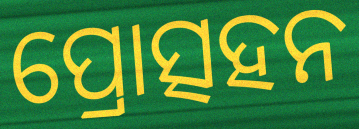
ପ୍ରୋତ୍ସହନ